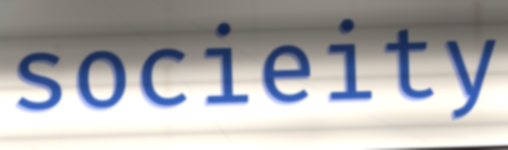
socieity